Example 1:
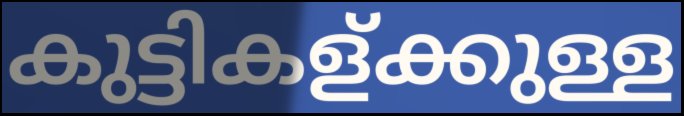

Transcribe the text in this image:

കുട്ടികള്ക്കുള്ള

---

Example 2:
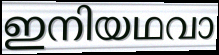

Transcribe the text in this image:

ഇനിയഥവാ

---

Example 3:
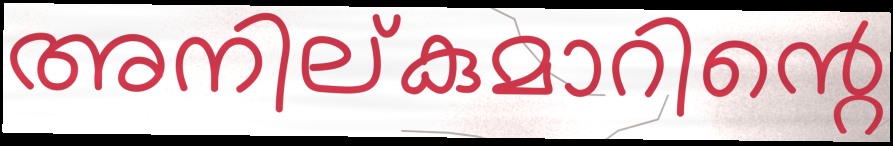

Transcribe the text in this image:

അനില്കുമാറിന്റെ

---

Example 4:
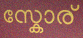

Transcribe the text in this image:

സ്കോര്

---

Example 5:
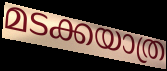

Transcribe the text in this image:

മടക്കയാത്ര